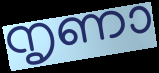
നൃണാ